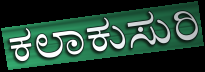
ಕಲಾಕುಸುರಿ